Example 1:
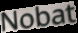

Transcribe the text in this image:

Nobat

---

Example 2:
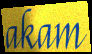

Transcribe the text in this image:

akam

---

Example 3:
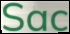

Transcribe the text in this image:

Sac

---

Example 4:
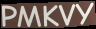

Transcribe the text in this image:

PMKVY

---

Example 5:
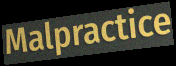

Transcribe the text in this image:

Malpractice